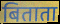
बिताता